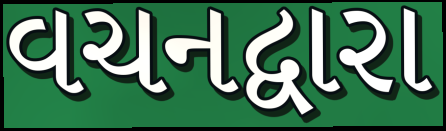
વચનદ્વારા